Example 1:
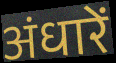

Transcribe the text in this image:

अंधारें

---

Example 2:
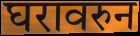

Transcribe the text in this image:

घरावरुन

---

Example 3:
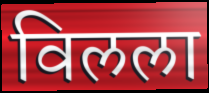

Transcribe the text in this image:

विलला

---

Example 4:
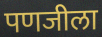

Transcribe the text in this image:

पणजीला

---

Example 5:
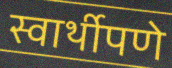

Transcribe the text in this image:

स्वार्थीपणे